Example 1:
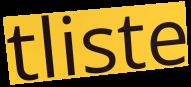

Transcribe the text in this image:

tliste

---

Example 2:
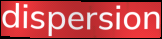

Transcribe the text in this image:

dispersion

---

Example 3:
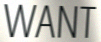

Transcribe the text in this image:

WANT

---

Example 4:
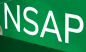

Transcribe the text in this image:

NSAP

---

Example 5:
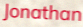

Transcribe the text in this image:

Jonathan